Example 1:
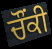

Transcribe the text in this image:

ਚੌਂਕੀ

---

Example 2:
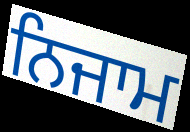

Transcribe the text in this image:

ਨਿਜਾਮ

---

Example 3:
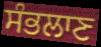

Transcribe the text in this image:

ਸੰਭਲਾਣ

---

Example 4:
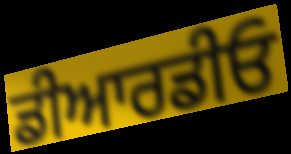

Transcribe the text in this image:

ਡੀਆਰਡੀਓ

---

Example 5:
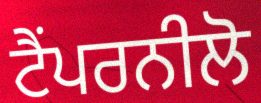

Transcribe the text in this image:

ਟੈਂਪਰਨੀਲੋ